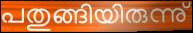
പതുങ്ങിയിരുന്നു്